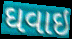
ઘવાઇ